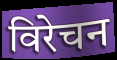
विरेचन